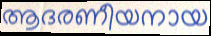
ആദരണീയനായ